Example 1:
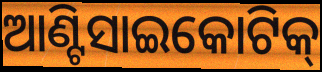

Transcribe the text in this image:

ଆଣ୍ଟିସାଇକୋଟିକ୍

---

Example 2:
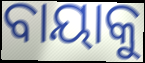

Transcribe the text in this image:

ବାୟାକୁ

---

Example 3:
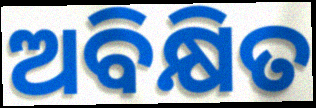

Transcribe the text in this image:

ଅବିକ୍ଷିତ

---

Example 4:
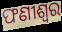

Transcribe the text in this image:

ଫଣୀଶ୍ୱର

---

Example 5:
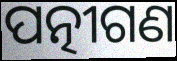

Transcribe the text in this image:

ପତ୍ନୀଗଣ